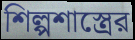
শিল্পশাস্ত্রের